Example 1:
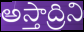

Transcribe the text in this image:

అస్తాద్రిని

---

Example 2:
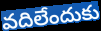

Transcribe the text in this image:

వదిలేందుకు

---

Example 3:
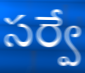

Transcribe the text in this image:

సర్వే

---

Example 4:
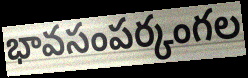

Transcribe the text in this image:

భావసంపర్కంగల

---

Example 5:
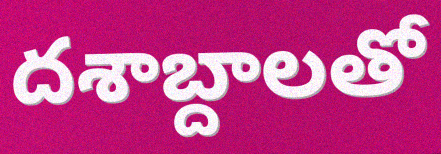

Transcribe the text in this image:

దశాబ్దాలతో